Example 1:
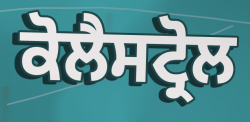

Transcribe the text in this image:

ਕੋਲੈਸਟ੍ਰੋਲ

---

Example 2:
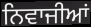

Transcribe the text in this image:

ਨਿਵਾਜੀਆਂ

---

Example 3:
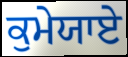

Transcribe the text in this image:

ਕੁਮੇਯਾਏ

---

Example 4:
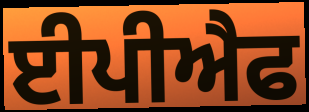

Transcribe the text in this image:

ਈਪੀਐਫ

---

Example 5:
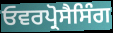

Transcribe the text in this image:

ਓਵਰਪ੍ਰੋਸੈਸਿੰਗ